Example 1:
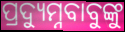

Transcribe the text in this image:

ପ୍ରଦ୍ୟୁମ୍ନବାବୁଙ୍କୁ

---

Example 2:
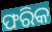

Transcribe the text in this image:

ଫରିକ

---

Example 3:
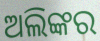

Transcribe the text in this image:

ଅଲିଙ୍କର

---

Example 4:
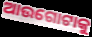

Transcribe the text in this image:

ଆଉଗୋଟାକୁ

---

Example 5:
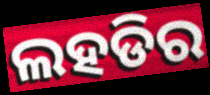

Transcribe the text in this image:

ଲହଡିର